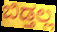
ಬಿಡ್ತಲ್ಲ